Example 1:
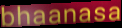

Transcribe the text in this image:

bhaanasa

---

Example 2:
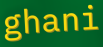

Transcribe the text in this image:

ghani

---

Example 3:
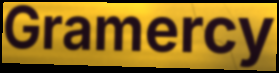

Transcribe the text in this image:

Gramercy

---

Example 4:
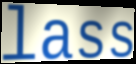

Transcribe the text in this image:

lass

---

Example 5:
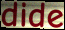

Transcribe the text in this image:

dide